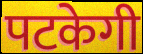
पटकेगी